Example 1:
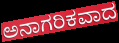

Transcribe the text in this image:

ಅನಾಗರಿಕವಾದ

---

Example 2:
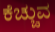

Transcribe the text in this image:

ಕೆಚ್ಚುವ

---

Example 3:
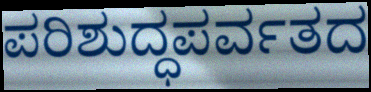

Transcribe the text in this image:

ಪರಿಶುದ್ಧಪರ್ವತದ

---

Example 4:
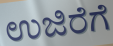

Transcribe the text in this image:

ಉಜಿರೆಗೆ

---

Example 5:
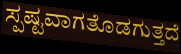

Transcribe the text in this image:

ಸ್ಪಷ್ಟವಾಗತೊಡಗುತ್ತದೆ